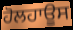
ਹੋਲਹਾਊਸ